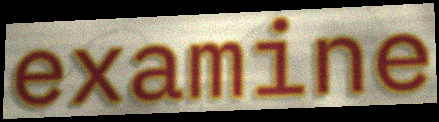
examine